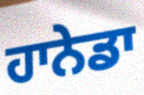
ਹਾਨੇਡਾ